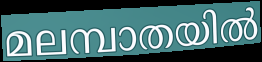
മലമ്പാതയിൽ